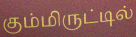
கும்மிருட்டில்